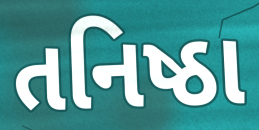
તનિષ્ઠા